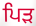
ਪਿੜ